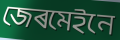
জেৰমেইনে